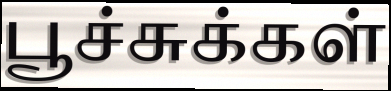
பூச்சுக்கள்